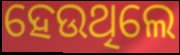
ହେଉଥିଲେ